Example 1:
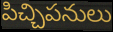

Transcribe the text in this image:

పిచ్చిపనులు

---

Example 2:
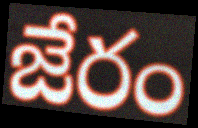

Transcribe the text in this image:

జేరం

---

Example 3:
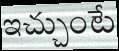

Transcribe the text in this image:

ఇచ్చుంటే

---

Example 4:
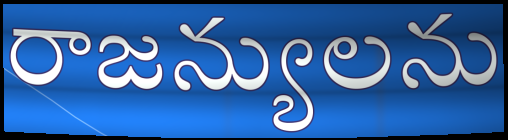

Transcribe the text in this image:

రాజన్యులను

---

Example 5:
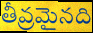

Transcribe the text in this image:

తీవ్రమైనది